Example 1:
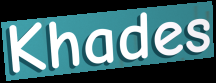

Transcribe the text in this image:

Khades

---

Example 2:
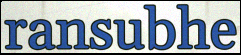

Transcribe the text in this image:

ransubhe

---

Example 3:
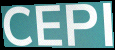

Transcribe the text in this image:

CEPI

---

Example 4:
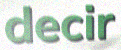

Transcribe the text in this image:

decir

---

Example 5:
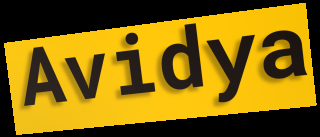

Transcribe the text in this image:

Avidya